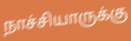
நாச்சியாருக்கு